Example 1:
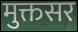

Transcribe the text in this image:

मुक्तसर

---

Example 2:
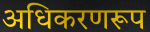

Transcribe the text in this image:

अधिकरणरूप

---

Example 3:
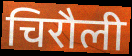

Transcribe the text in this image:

चिरौली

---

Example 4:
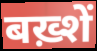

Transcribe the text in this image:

बख़्शें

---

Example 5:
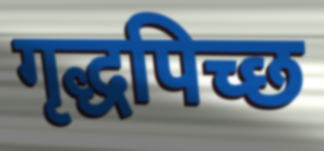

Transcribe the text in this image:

गृद्धपिच्छ